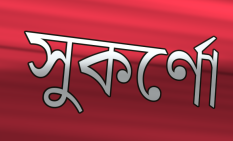
সুকৰ্ণো